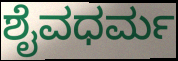
ಶೈವಧರ್ಮ